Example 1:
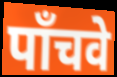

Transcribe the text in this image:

पाँचवे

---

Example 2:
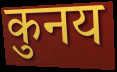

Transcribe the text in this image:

कुनय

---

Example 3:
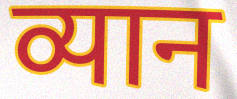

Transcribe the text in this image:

व्यान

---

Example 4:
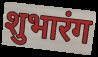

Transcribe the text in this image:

शुभारंग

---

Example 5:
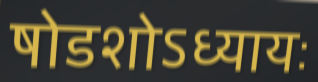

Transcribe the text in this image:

षोडशोऽध्यायः